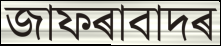
জাফৰাবাদৰ